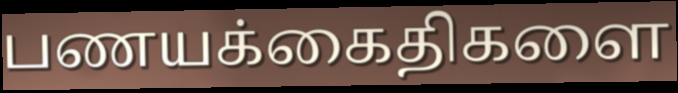
பணயக்கைதிகளை